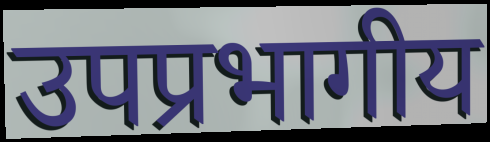
उपप्रभागीय